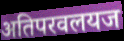
अतिपरवलयज